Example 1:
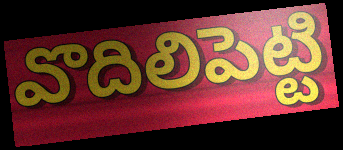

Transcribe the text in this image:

వొదిలిపెట్టి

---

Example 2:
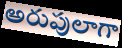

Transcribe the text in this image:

అరుపులాగా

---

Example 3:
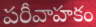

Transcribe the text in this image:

పరీవాహకం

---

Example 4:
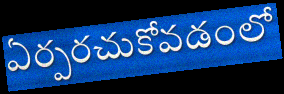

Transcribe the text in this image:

ఏర్పరచుకోవడంలో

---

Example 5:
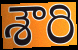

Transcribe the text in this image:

శౌరి